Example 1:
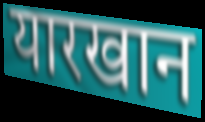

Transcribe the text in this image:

यारखान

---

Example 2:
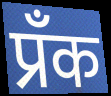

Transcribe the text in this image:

प्रँक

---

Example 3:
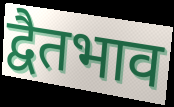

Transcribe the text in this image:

द्वैतभाव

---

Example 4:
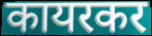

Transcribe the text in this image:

कायरकर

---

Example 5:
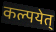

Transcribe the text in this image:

कल्पयेत्